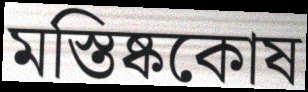
মস্তিষ্ককোষ